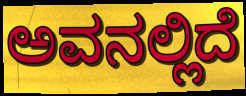
ಅವನಲ್ಲಿದೆ